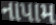
નાપામ